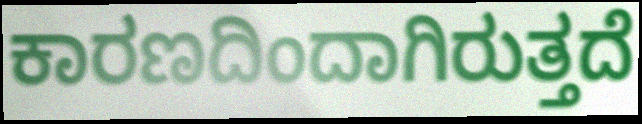
ಕಾರಣದಿಂದಾಗಿರುತ್ತದೆ